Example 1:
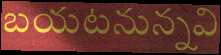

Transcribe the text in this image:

బయటనున్నవి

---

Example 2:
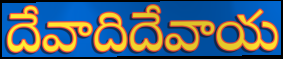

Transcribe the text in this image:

దేవాదిదేవాయ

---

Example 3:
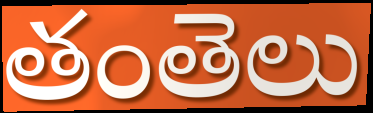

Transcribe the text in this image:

తంతెలు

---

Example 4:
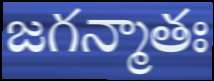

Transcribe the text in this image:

జగన్మాతః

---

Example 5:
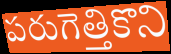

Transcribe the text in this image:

పరుగెత్తికొని